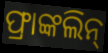
ଫ୍ରାଙ୍କଲିନ୍